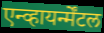
एन्व्हायर्न्मेंटल